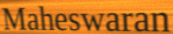
Maheswaran